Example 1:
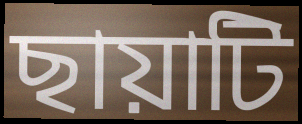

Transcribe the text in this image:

ছায়াটি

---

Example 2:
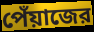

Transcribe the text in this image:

পেঁয়াজের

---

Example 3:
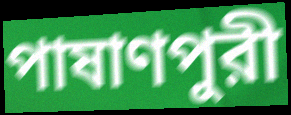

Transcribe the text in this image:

পাষাণপুরী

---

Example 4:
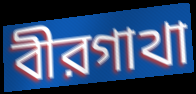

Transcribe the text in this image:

বীরগাথা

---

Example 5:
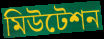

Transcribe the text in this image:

মিউটেশন